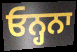
ਓਨ੍ਹਨਾ